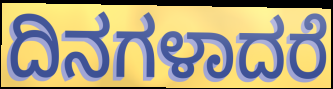
ದಿನಗಳಾದರೆ